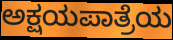
ಅಕ್ಷಯಪಾತ್ರೆಯ